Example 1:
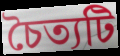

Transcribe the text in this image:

চৈত্যটি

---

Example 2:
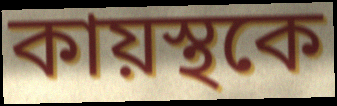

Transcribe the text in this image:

কায়স্থকে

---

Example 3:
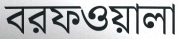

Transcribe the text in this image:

বরফওয়ালা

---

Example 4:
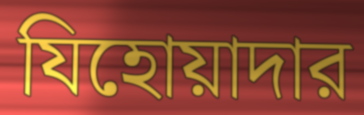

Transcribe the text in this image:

যিহোয়াদার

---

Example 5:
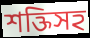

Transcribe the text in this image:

শক্তিসহ